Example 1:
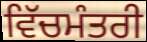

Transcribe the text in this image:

ਵਿੱਚਮੰਤਰੀ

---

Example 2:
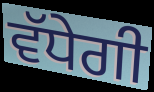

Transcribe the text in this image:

ਵੱਧੇਗੀ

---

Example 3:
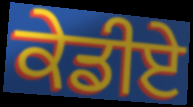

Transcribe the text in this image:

ਕੇਡੀਏ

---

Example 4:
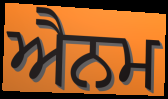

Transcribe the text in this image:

ਐਨਮ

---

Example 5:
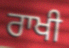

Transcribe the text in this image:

ਰਾਖੀ